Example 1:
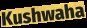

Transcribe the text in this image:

Kushwaha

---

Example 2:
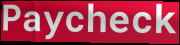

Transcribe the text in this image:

Paycheck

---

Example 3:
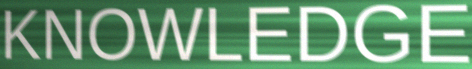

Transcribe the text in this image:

KNOWLEDGE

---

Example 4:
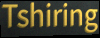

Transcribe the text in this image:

Tshiring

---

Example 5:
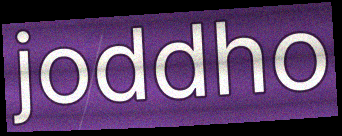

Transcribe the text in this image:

joddho